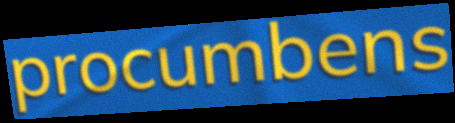
procumbens